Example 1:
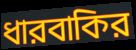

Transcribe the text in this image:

ধারবাকির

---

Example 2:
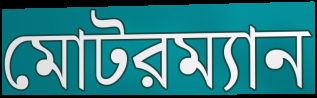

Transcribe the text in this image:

মোটরম্যান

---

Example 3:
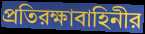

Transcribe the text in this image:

প্রতিরক্ষাবাহিনীর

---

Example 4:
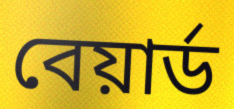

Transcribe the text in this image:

বেয়ার্ড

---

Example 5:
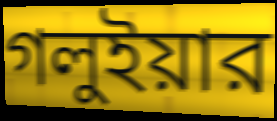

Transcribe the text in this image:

গলুইয়ার